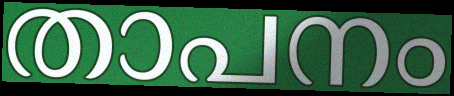
താപനം